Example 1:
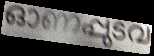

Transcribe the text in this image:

ഓണപ്പുടവ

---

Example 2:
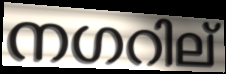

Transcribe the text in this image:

നഗറില്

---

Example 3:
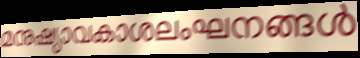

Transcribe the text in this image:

മനുഷ്യാവകാശലംഘനങ്ങൾ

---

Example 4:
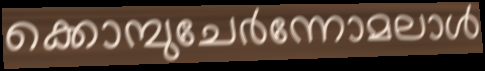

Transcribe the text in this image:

ക്കൊമ്പുചേർന്നോമലാൾ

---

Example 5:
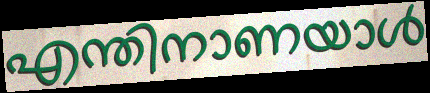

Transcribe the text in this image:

എന്തിനാണയാൾ